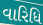
વારિધિ